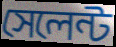
সেলেন্ট